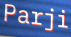
Parji